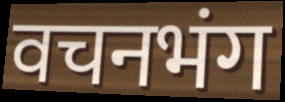
वचनभंग